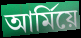
আৰ্মিয়ে